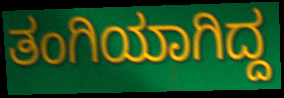
ತಂಗಿಯಾಗಿದ್ದ